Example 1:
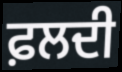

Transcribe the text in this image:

ਫ਼ਲਦੀ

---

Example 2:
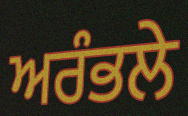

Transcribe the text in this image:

ਅਰੰਭਲੇ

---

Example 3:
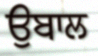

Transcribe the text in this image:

ਉਬਾਲ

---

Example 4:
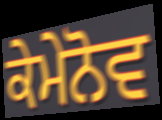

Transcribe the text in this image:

ਕੇਮੇਨੋਵ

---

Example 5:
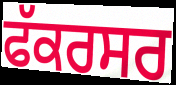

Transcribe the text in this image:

ਫੱਕਰਸਰ